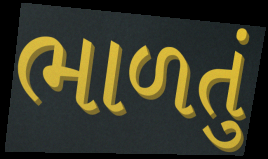
ભાળતું